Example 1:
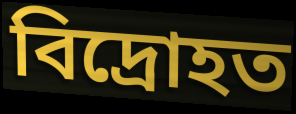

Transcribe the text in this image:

বিদ্ৰোহত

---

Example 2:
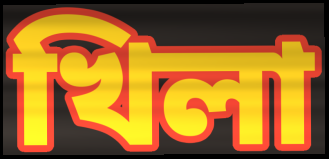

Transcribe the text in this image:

খিলা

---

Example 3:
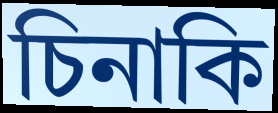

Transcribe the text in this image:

চিনাকি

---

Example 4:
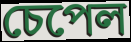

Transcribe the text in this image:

চেপেল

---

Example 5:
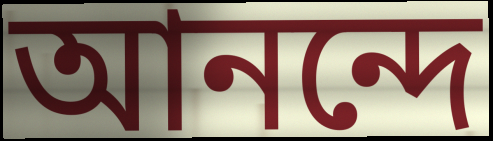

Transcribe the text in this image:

আনন্দে